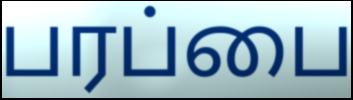
பரப்பை